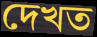
দেখত